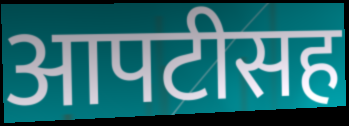
आपटीसह